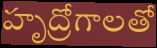
హృద్రోగాలతో